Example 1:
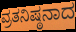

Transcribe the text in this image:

ವ್ರತನಿಷ್ಠನಾದ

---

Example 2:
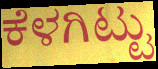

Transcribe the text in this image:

ಕೆಳಗಿಟ್ಟು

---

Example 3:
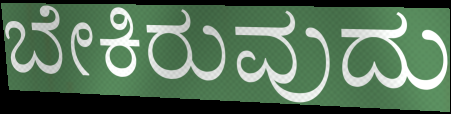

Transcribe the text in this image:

ಬೇಕಿರುವುದು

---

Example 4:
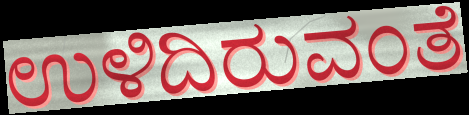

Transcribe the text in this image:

ಉಳಿದಿರುವಂತೆ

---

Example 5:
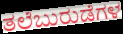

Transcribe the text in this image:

ತಲೆಬುರುಡೆಗಳ